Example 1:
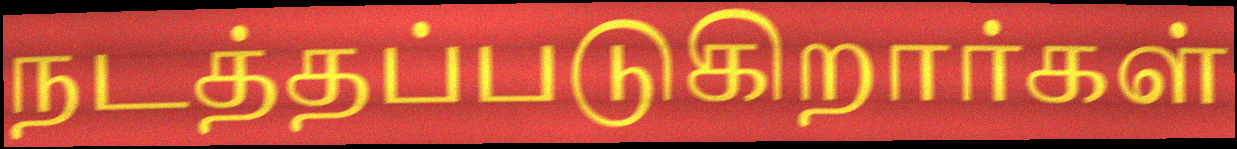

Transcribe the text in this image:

நடத்தப்படுகிறார்கள்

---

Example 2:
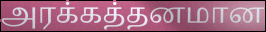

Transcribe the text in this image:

அரக்கத்தனமான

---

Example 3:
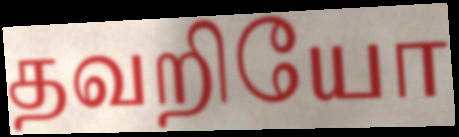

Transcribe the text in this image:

தவறியோ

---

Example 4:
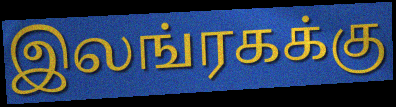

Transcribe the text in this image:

இலங்ரகக்கு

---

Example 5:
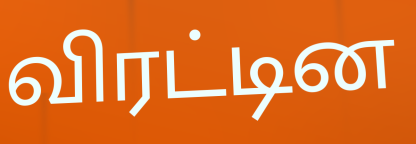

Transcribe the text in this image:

விரட்டின